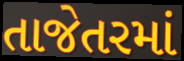
તાજેતરમાં